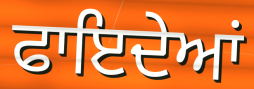
ਫਾਇਦੇਆਂ